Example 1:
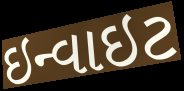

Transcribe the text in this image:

ઇન્વાઇટ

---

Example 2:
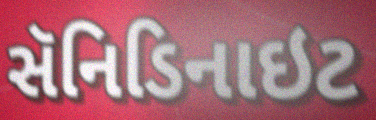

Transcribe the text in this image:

સૅનિડિનાઇટ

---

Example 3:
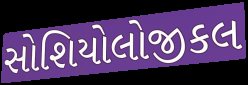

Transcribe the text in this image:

સોશિયોલોજીકલ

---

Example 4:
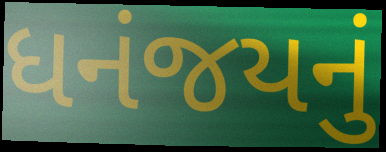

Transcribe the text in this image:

ધનંજયનું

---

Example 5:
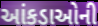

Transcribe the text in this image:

આંકડાઓની